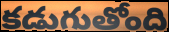
కడుగుతోంది